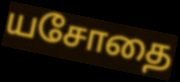
யசோதை